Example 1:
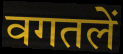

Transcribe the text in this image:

वगतलें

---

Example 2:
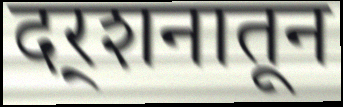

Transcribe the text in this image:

दर्शनातून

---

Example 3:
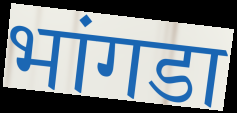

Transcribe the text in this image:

भांगडा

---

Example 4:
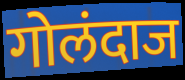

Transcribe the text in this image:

गोलंदाज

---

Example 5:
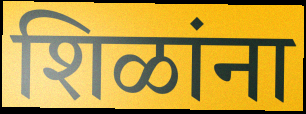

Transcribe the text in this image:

शिळांना